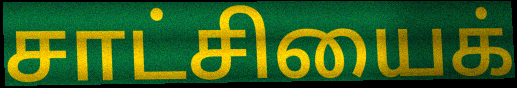
சாட்சியைக்